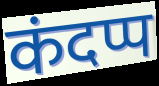
कंदप्प